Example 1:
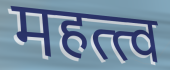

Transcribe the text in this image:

महत्‍त्‍व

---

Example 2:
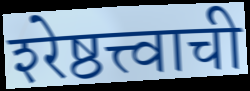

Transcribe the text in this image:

श्रेष्ठत्त्वाची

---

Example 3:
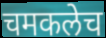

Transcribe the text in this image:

चमकलेच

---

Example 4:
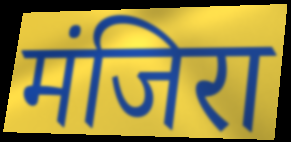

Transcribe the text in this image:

मंजिरा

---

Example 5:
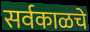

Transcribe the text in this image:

सर्वकाळचे